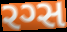
રગ્સ